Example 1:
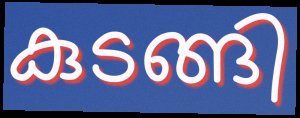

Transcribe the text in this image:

കുടങ്ങി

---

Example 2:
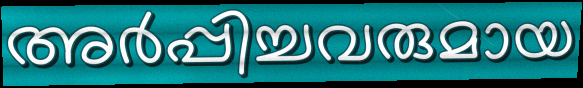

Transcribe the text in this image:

അർപ്പിച്ചവരുമായ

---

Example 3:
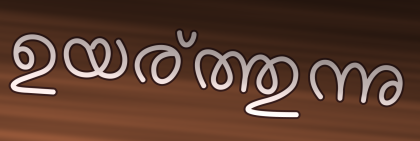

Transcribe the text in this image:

ഉയര്ത്തുന്നു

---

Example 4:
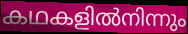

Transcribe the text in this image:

കഥകളിൽനിന്നും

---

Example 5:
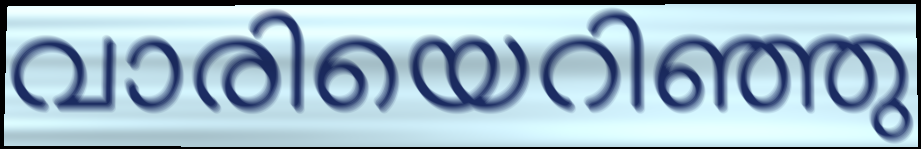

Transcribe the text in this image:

വാരിയെറിഞ്ഞു